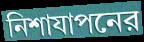
নিশাযাপনের